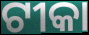
ଟୀକା